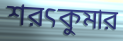
শরৎকুমার